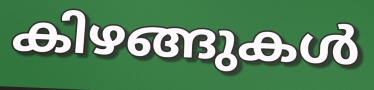
കിഴങ്ങുകൾ